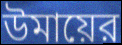
উমায়ের